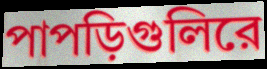
পাপড়িগুলিরে